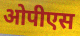
ओपीएस